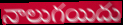
నాలుగయిదు